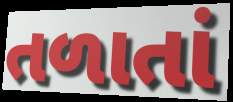
તળાતાં